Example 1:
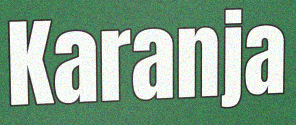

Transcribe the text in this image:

Karanja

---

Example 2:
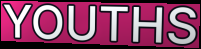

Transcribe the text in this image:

YOUTHS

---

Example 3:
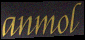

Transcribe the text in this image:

anmol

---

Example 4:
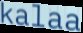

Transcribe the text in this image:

kalaa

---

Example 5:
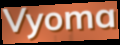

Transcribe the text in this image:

Vyoma